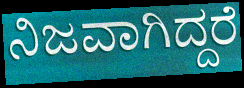
ನಿಜವಾಗಿದ್ದರೆ